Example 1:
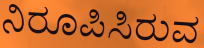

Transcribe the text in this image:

ನಿರೂಪಿಸಿರುವ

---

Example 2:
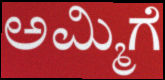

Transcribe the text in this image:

ಅಮ್ಮಿಗೆ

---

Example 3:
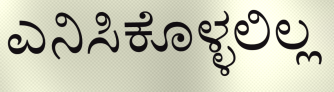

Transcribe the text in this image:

ಎನಿಸಿಕೊಳ್ಳಲಿಲ್ಲ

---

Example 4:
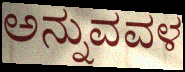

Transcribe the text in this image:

ಅನ್ನುವವಳ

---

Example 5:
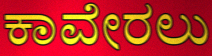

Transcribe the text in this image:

ಕಾವೇರಲು